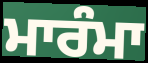
ਮਾਰੰਮਾ